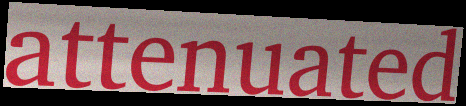
attenuated